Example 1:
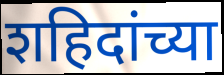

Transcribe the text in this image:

शहिदांच्या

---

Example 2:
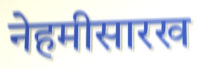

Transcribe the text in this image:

नेहमीसारख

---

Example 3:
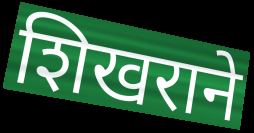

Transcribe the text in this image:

शिखराने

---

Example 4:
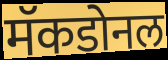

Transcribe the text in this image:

मॅकडोनल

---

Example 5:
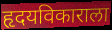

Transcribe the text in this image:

हृदयविकाराला